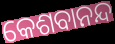
କେଶବାନନ୍ଦ